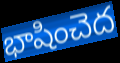
భాషించెద